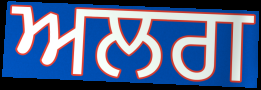
ਅਲਗ